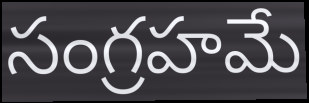
సంగ్రహమే